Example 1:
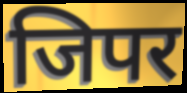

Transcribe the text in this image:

जिपर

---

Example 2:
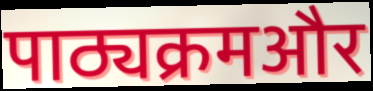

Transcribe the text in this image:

पाठ्यक्रमऔर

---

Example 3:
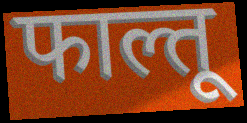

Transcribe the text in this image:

फाल्तू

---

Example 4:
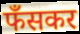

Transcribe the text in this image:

फँसकर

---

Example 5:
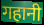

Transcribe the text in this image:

गहानी